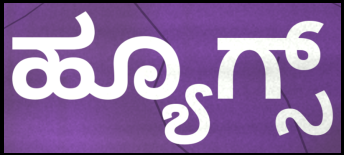
ಹ್ಯೂಗ್ಸ್